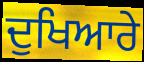
ਦੁਖਿਆਰੇ